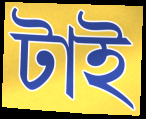
টাই